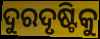
ଦୁରଦୃଷ୍ଟିକୁ